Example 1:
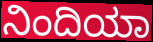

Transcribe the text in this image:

ನಿಂದಿಯಾ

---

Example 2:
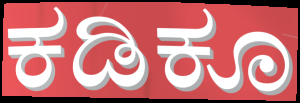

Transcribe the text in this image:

ಕಡಿಕೂ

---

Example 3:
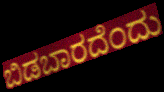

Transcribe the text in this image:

ಬಿಡಬಾರದೆಂದು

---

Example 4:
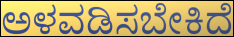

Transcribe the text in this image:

ಅಳವಡಿಸಬೇಕಿದೆ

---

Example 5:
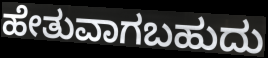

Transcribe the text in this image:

ಹೇತುವಾಗಬಹುದು